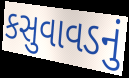
કસુવાવડનું